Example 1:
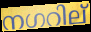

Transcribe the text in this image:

നഗറില്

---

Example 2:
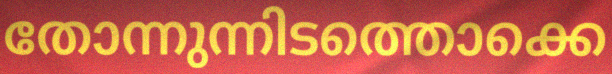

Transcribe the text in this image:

തോന്നുന്നിടത്തൊക്കെ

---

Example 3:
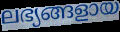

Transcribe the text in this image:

ലഭ്യങ്ങളായ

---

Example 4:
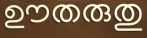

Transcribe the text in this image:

ഊതരുതു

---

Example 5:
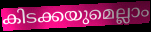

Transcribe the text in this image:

കിടക്കയുമെല്ലാം